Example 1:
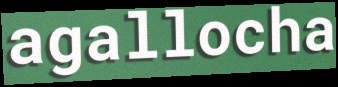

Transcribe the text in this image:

agallocha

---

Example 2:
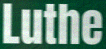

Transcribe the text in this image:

Luthe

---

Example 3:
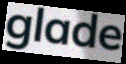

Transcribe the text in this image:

glade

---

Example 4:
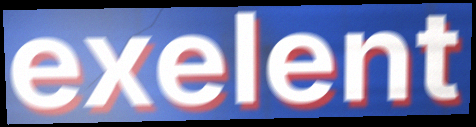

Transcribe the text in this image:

exelent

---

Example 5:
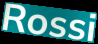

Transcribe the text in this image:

Rossi